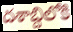
దశాబ్దిలోకి